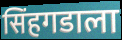
सिंहगडाला